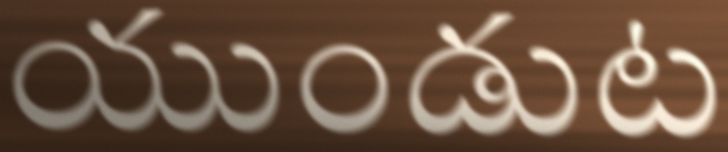
యుండుట